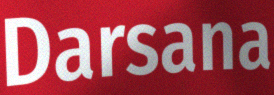
Darsana